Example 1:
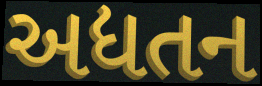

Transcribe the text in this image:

અદ્યતન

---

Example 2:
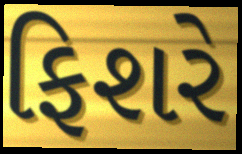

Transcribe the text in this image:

ફિશરે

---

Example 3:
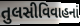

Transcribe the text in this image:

તુલસીવિવાહનાં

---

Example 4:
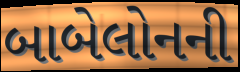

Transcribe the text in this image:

બાબેલોનની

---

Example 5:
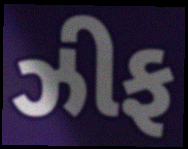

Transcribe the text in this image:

ઝીફ